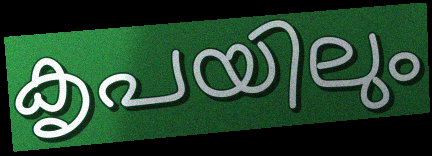
കൃപയിലും